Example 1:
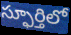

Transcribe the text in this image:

స్ఫూర్తిలో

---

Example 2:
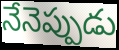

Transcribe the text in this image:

నేనెప్పుడు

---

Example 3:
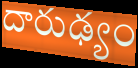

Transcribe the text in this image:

దారుఢ్యం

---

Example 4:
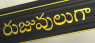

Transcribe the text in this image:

రుజువులుగా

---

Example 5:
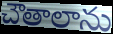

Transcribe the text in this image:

చౌతాలాను